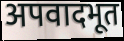
अपवादभूत